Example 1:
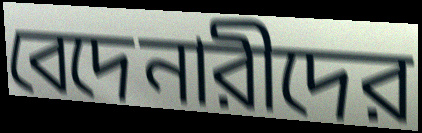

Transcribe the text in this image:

বেদেনারীদের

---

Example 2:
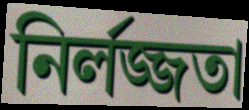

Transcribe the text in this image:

নির্লজ্জতা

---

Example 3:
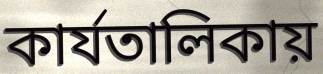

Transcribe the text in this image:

কার্যতালিকায়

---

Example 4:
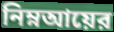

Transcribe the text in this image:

নিম্নআয়ের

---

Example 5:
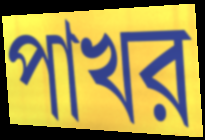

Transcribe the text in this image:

পাখর